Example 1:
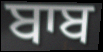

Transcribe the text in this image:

ਬਾਬ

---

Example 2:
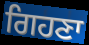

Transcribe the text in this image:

ਗਿਹਣਾ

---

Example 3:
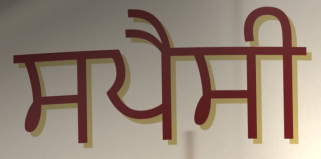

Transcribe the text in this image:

ਸਪੈਸੀ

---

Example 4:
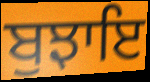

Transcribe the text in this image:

ਬੁਝਾਇ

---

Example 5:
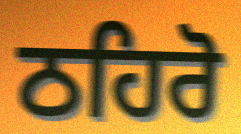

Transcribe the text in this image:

ਠਹਿਰੋ